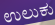
ಉಲುಕು